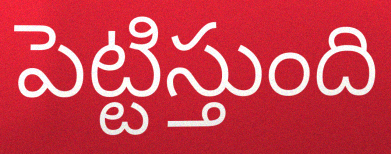
పెట్టిస్తుంది